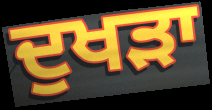
ਦੁਖੜਾ